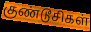
குண்டூசிகள்